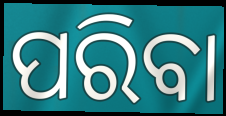
ପରିବା